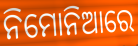
ନିମୋନିଆରେ